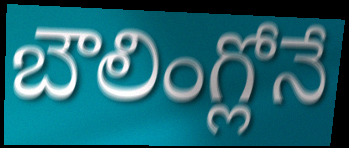
బౌలింగ్లోనే